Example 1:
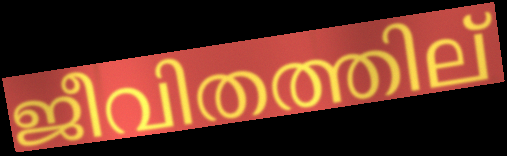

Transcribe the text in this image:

ജീവിതത്തില്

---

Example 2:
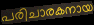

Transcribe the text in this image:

പരിചാരകനായ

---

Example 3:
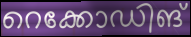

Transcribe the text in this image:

റെക്കോഡിങ്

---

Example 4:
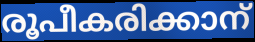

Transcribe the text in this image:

രൂപീകരിക്കാന്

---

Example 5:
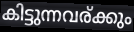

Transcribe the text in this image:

കിട്ടുന്നവര്ക്കും